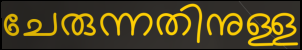
ചേരുന്നതിനുള്ള